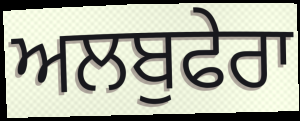
ਅਲਬੁਫੇਰਾ